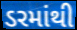
ડરમાંથી